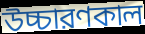
উচ্চারণকাল